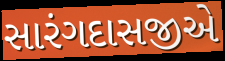
સારંગદાસજીએ